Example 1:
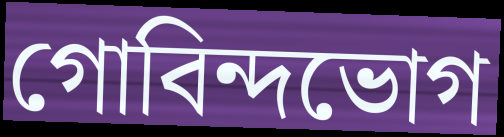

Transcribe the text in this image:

গোবিন্দভোগ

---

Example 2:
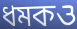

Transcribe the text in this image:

ধমকও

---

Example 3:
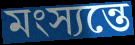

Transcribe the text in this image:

মংস্যন্তে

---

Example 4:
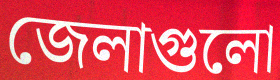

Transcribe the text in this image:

জেলাগুলো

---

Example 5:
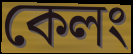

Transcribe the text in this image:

কেলং